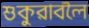
শুকুৱাবলৈ